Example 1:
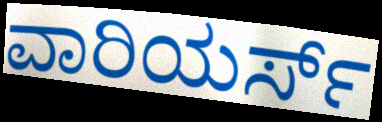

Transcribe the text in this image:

ವಾರಿಯರ್ಸ್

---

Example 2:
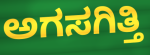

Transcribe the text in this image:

ಅಗಸಗಿತ್ತಿ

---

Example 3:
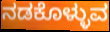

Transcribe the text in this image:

ನಡಕೊಳ್ಳುವ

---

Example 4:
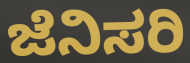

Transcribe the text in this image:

ಜೆನಿಸರಿ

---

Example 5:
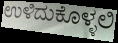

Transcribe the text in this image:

ಉಳಿದುಕೊಳ್ಳಲಿ